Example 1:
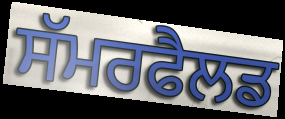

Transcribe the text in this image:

ਸੱਮਰਫੈਲਡ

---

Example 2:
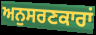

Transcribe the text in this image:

ਅਨੁਸਰਣਕਾਰਾਂ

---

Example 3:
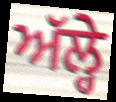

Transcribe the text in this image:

ਅੱਲ੍ਹੇ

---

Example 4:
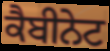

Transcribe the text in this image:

ਕੈਬੀਨੇਟ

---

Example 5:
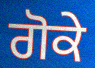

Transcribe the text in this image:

ਗੋਕੇ